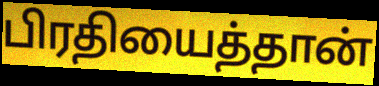
பிரதியைத்தான்